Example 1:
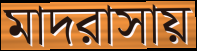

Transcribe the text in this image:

মাদরাসায়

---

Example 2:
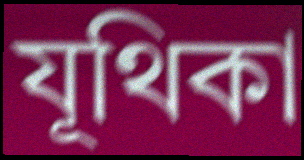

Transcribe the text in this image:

যূথিকা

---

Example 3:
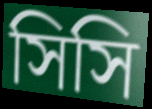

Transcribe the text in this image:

সিসি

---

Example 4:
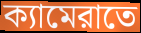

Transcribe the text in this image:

ক্যামেরাতে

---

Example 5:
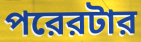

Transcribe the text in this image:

পরেরটার